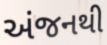
અંજનથી